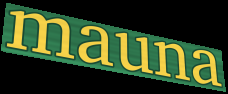
mauna